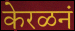
केरळनं